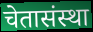
चेतासंस्था